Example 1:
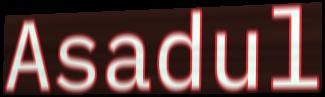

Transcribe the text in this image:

Asadul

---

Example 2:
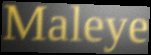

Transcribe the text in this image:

Maleye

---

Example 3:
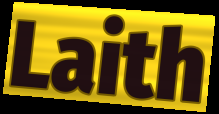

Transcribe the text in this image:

Laith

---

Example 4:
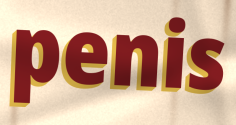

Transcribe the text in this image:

penis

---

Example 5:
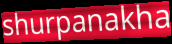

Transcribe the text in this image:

shurpanakha